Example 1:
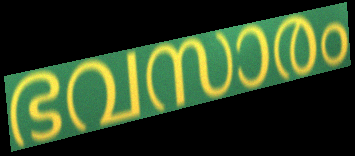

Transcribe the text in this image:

ഭവസാരം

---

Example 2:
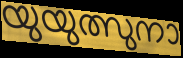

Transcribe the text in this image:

യുയുത്സുനാ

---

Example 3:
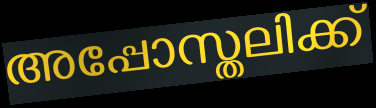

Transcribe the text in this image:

അപ്പോസ്തലിക്ക്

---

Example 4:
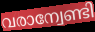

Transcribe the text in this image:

വരാന്വേണ്ടി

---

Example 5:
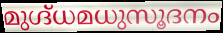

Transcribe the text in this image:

മുഗ്ദ്ധമധുസൂദനം